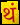
थं